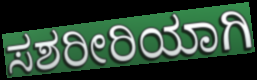
ಸಶರೀರಿಯಾಗಿ